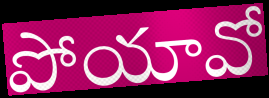
పోయావో